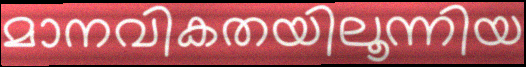
മാനവികതയിലൂന്നിയ